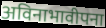
अविनाभावीपना